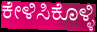
ಕೇಳಿಸಿಕೊಳ್ಳಿ